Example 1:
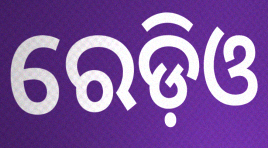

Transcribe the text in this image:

ରେଡ଼ିଓ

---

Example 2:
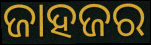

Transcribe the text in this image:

ଜାହଜର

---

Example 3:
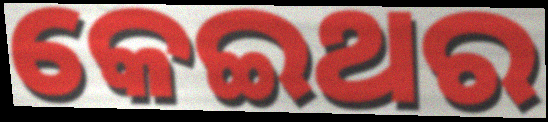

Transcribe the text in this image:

କେଇଥର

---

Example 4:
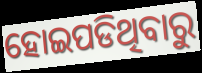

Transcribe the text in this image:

ହୋଇପଡିଥିବାରୁ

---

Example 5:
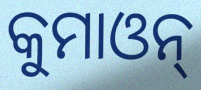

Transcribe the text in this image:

କୁମାଓନ୍